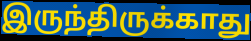
இருந்திருக்காது